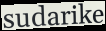
sudarike